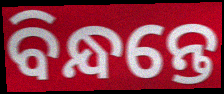
ବିନ୍ଧନ୍ତେ